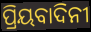
ପ୍ରିୟବାଦିନୀ